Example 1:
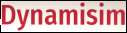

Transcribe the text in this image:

Dynamisim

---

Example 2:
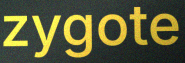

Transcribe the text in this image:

zygote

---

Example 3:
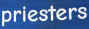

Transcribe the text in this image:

priesters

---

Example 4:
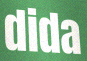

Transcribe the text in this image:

dida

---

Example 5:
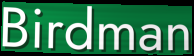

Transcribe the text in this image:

Birdman